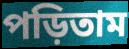
পড়িতাম